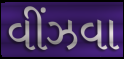
વીંઝવા